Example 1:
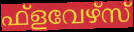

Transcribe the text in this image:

ഫ്ളവേഴ്സ്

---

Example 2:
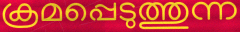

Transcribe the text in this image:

ക്രമപ്പെടുത്തുന്ന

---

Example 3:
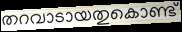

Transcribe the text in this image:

തറവാടായതുകൊണ്ട്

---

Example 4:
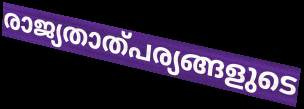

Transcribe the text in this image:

രാജ്യതാത്പര്യങ്ങളുടെ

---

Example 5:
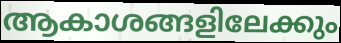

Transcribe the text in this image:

ആകാശങ്ങളിലേക്കും